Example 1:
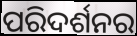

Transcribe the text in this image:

ପରିଦର୍ଶନର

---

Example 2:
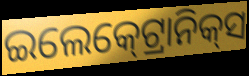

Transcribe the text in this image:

ଇଲେକ୍‍ଟ୍ରୋନିକ୍‍ସ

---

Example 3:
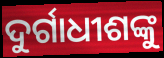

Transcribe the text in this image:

ଦୁର୍ଗାଧୀଶଙ୍କୁ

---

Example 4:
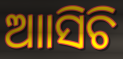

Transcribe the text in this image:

ଆାସିଚି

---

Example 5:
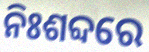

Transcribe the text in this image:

ନିଃଶବ୍ଦରେ